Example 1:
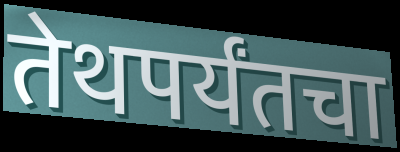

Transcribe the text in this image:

तेथपर्यंतचा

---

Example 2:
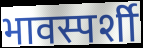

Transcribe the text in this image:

भावस्पर्शी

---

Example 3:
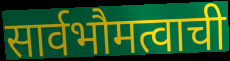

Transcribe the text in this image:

सार्वभौमत्वाची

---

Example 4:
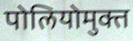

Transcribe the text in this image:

पोलियोमुक्त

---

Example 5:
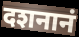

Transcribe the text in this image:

दशनानं